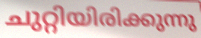
ചുറ്റിയിരിക്കുന്നു